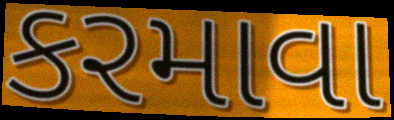
કરમાવા